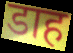
डाह